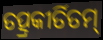
ତତ୍ପ୍ରକୀର୍ତିତମ୍